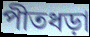
পীতধড়া